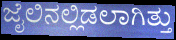
ಜೈಲಿನಲ್ಲಿಡಲಾಗಿತ್ತು